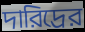
দারিদ্রের